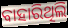
ବାହାରିଥିଲି